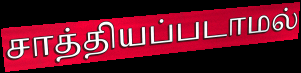
சாத்தியப்படாமல்